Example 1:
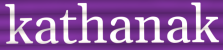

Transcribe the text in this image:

kathanak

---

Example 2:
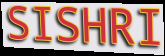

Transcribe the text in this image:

SISHRI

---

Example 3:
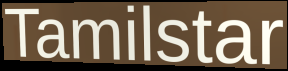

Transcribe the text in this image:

Tamilstar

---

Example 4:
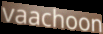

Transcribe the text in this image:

vaachoon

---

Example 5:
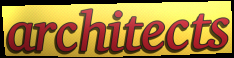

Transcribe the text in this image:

architects